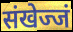
संखेज्जं